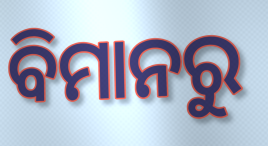
ବିମାନରୁ